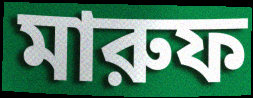
মারুফ